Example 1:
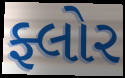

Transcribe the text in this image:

ફ્લોર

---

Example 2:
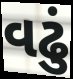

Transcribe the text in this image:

વઢું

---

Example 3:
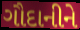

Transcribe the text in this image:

ગૌદાનીને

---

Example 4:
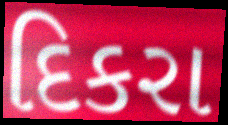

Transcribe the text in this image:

દિકરા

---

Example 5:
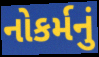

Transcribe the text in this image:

નોકર્મનું